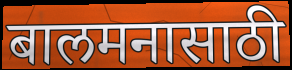
बालमनासाठी